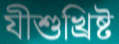
যীশুখ্রিষ্ট